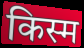
किस्‍म